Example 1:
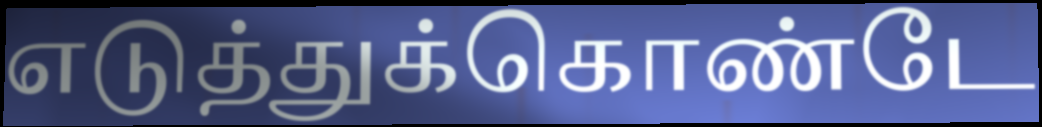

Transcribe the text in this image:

எடுத்துக்கொண்டே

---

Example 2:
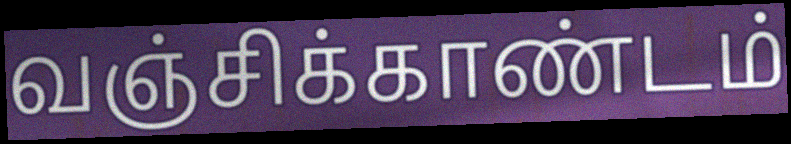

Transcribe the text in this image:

வஞ்சிக்காண்டம்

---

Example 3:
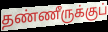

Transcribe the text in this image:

தண்ணீருக்குப்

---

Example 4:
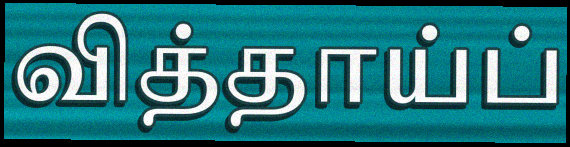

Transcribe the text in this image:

வித்தாய்ப்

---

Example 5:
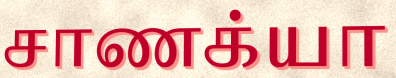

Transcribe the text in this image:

சாணக்யா